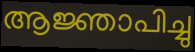
ആജ്ഞാപിച്ചു